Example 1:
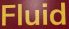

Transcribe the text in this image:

Fluid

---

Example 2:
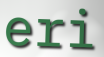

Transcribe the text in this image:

eri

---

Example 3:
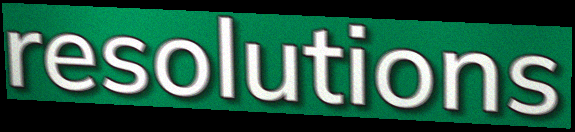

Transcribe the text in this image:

resolutions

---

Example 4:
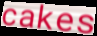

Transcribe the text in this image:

cakes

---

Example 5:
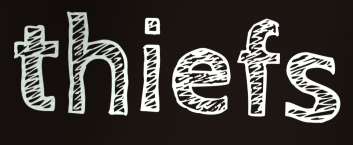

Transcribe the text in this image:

thiefs